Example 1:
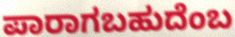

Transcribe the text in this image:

ಪಾರಾಗಬಹುದೆಂಬ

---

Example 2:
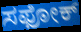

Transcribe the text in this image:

ಸಫೋಕ್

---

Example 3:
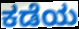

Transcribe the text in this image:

ಕಡೆಯ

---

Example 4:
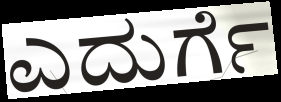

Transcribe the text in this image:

ಎದುರ್ಗೆ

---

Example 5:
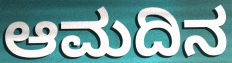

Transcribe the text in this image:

ಆಮದಿನ